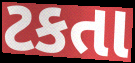
ટકતા